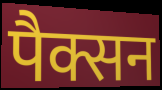
पैक्सन